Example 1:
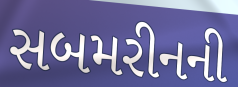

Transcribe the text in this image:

સબમરીનની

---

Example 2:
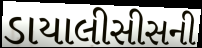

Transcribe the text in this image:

ડાયાલીસીસની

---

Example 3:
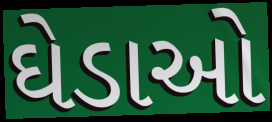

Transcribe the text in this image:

ઘેડાઓ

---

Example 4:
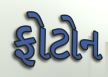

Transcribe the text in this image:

ફોટોન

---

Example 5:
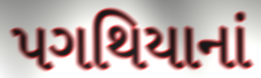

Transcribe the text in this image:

પગથિયાનાં